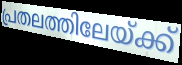
പ്രതലത്തിലേയ്ക്ക്